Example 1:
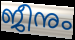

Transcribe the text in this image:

ജീനും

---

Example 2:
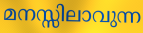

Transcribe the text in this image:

മനസ്സിലാവുന്ന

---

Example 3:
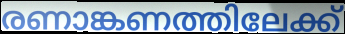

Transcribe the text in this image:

രണാങ്കണത്തിലേക്ക്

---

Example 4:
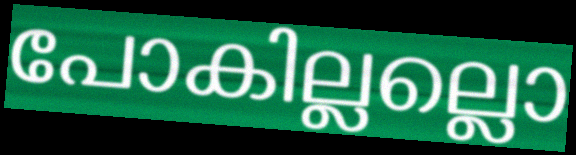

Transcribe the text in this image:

പോകില്ലല്ലൊ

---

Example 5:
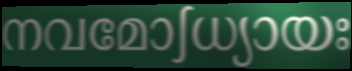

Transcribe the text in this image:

നവമോഽധ്യായഃ